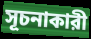
সূচনাকারী